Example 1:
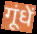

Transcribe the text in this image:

गूंधें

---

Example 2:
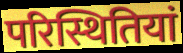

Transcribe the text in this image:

परिस्थितियां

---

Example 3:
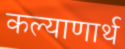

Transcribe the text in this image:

कल्याणार्थ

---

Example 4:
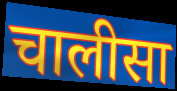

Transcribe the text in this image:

चालीसा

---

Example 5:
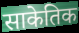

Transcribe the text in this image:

साकेतिक